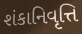
શંકાનિવૃત્તિ